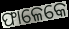
ଫାଳେକେ